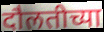
दौलतीच्या